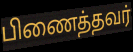
பிணைத்தவர்